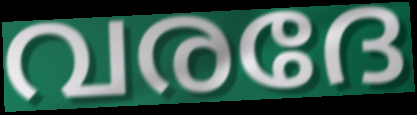
വരദേ